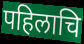
पहिलाचि